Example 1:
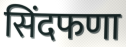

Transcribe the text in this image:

सिंदफणा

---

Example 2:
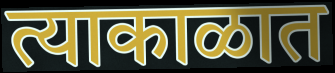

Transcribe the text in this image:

त्याकाळात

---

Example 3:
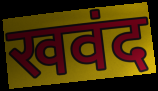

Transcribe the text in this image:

खवंद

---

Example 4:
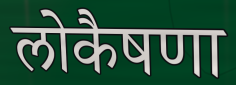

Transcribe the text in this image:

लोकैषणा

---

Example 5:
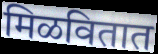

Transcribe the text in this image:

मिळवितात